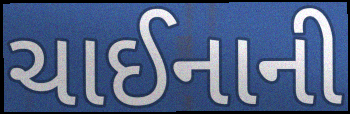
ચાઈનાની